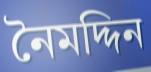
নৈমদ্দিন